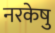
नरकेषु